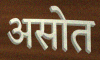
असोत